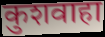
कुशवाहा